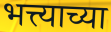
भत्त्याच्या